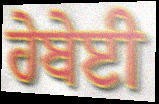
ਹੇਬੇਈ